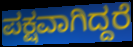
ಪಕ್ಷವಾಗಿದ್ದರೆ